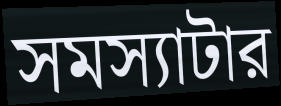
সমস্যাটার